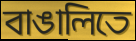
বাঙালিতে